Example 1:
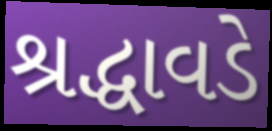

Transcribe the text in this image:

શ્રદ્ધાવડે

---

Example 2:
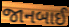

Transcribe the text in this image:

જાનબાઈ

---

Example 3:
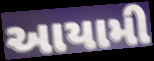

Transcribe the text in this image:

આયામી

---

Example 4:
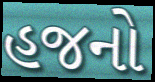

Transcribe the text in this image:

હજનો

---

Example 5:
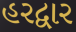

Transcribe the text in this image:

હરદ્વાર